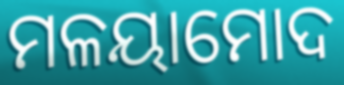
ମଳୟାମୋଦ